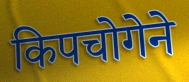
किपचोगेने